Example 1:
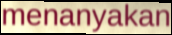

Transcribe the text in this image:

menanyakan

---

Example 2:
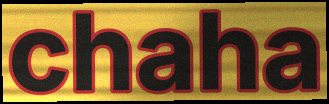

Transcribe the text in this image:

chaha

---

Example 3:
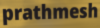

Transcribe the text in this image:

prathmesh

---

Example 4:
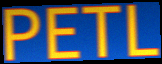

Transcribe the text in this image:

PETL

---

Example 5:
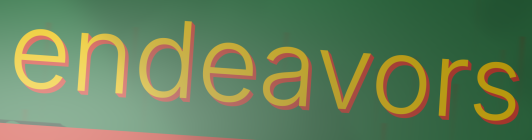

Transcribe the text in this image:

endeavors